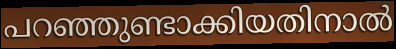
പറഞ്ഞുണ്ടാക്കിയതിനാൽ